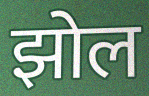
झोल